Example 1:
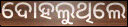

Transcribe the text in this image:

ଦୋହଲୁଥିଲେ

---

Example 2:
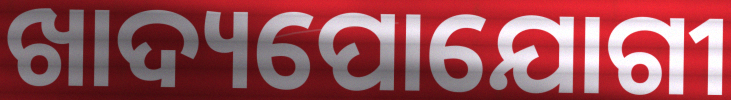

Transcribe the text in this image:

ଖାଦ୍ୟପୋଯୋଗୀ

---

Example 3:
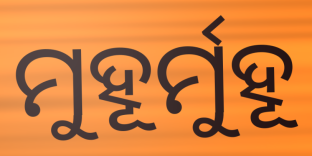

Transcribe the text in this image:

ମୁହୂର୍ମୁହୂ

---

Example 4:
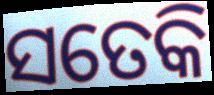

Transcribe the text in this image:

ସତେକି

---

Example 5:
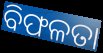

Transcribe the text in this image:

ବିଫଳତା